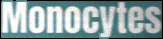
Monocytes